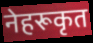
नेहरूकृत